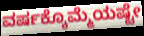
ವರ್ಷಕ್ಕೊಮ್ಮೆಯಷ್ಟೇ